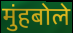
मुंहबोले